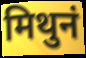
मिथुनं